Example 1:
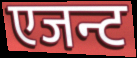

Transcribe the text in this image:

एजन्ट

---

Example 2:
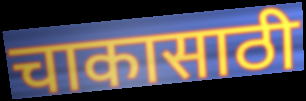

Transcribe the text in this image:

चाकासाठी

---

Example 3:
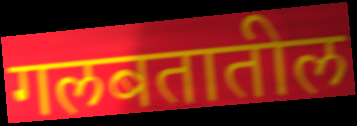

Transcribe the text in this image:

गलबतातील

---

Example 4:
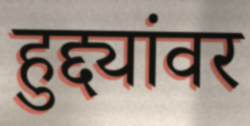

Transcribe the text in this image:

हुद्द्यांवर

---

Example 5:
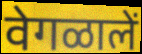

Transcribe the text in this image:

वेगळालें